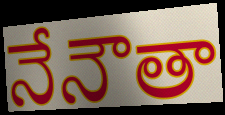
నేనౌతా